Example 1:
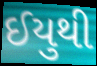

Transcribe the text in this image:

ઈયુથી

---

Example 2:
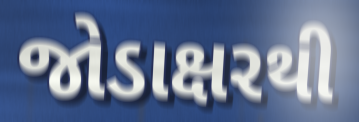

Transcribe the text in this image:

જોડાક્ષરથી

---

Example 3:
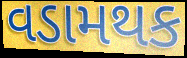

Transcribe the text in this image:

વડામથક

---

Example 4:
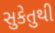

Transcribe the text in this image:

સુકેતુથી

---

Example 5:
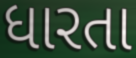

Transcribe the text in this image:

ધારતા